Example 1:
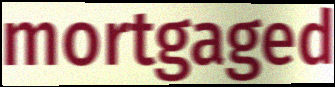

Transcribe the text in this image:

mortgaged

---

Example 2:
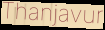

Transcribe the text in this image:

Thanjavur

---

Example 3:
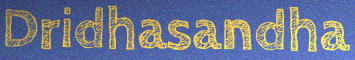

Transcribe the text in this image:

Dridhasandha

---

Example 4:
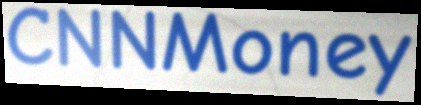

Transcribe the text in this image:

CNNMoney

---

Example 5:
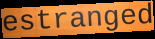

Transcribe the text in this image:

estranged